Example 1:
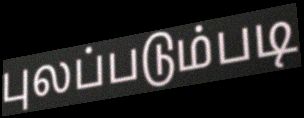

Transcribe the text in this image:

புலப்படும்படி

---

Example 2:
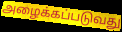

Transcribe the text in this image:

அழைக்கப்படுவது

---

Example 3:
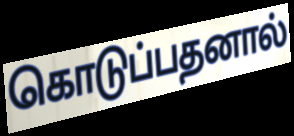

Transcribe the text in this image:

கொடுப்பதனால்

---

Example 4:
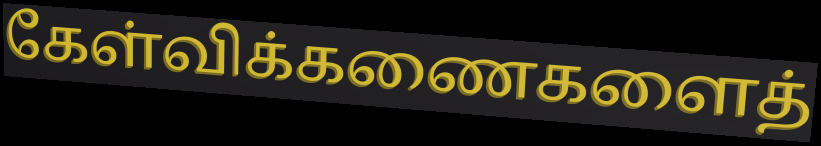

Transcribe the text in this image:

கேள்விக்கணைகளைத்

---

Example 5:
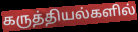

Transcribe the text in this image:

கருத்தியல்களில்